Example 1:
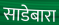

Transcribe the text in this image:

साडेबारा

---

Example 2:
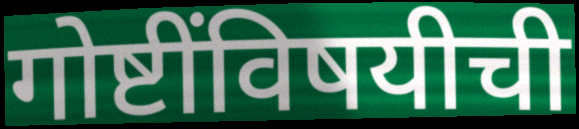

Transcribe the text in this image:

गोष्टींविषयीची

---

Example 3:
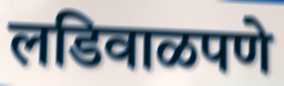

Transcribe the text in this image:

लडिवाळपणे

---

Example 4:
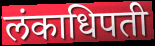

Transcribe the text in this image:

लंकाधिपती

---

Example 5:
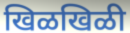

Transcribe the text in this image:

खिळखिळी